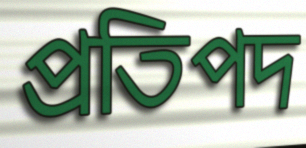
প্রতিপদ